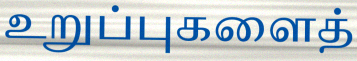
உறுப்புகளைத்